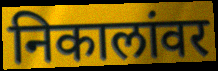
निकालांवर